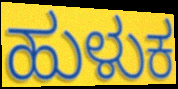
ಹುಳುಕ